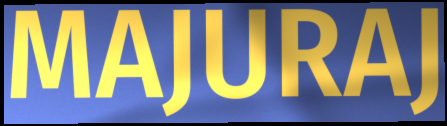
MAJURAJ